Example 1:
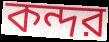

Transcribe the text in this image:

কন্দর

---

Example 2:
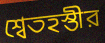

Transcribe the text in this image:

শ্বেতহস্তীর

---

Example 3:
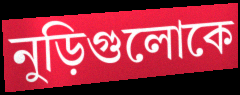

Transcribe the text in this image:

নুড়িগুলোকে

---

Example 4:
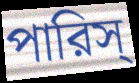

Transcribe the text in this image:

পারিস্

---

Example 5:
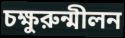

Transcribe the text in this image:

চক্ষুরুন্মীলন